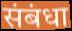
संबंधा